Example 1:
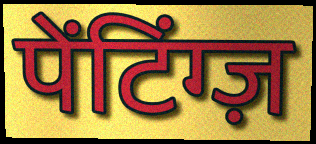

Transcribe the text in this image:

पेंटिंग्ज़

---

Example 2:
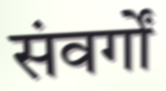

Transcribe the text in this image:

संवर्गों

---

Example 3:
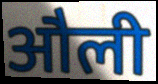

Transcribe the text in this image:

औली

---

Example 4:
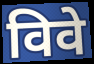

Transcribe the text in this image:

विवे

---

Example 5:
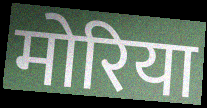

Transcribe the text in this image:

मोरिया